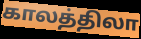
காலத்திலா